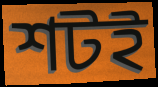
শটই